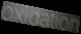
oxidation